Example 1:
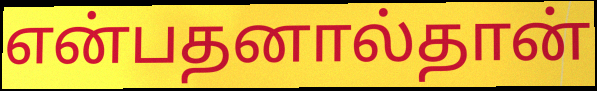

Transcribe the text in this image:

என்பதனால்தான்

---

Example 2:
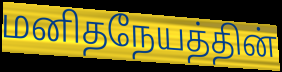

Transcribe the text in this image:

மனிதநேயத்தின்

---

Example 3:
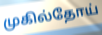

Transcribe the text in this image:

முகில்தோய்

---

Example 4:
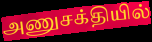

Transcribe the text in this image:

அணுசக்தியில்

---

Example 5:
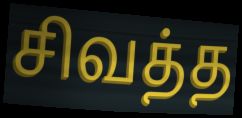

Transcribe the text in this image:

சிவத்த